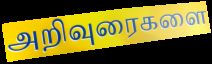
அறிவுரைகளை